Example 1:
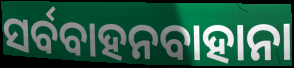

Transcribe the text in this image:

ସର୍ବବାହନବାହାନା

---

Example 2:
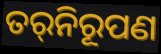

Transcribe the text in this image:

ତର୍‌ନିରୂପଣ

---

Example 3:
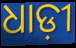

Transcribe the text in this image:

ଧାଡ଼ୀ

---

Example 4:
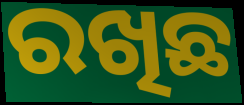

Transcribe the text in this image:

ରଖିଛ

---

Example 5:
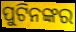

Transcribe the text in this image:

ପୁଟିନଙ୍କର